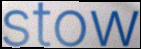
stow